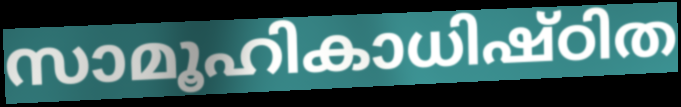
സാമൂഹികാധിഷ്ഠിത